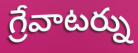
గ్రేవాటర్ను